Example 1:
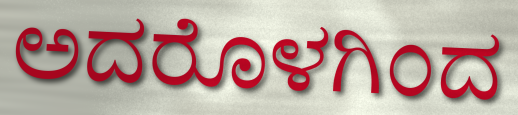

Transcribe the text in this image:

ಅದರೊಳಗಿಂದ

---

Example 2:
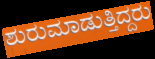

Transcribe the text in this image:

ಶುರುಮಾಡುತ್ತಿದ್ದರು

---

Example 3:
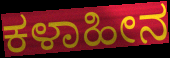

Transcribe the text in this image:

ಕಳಾಹೀನ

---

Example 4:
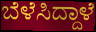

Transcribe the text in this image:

ಬೆಳೆಸಿದ್ದಾಳೆ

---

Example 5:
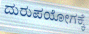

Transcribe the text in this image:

ದುರುಪಯೋಗಕ್ಕೆ